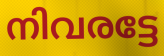
നിവരട്ടേ